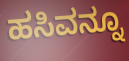
ಹಸಿವನ್ನೂ